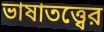
ভাষাতত্ত্বের